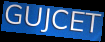
GUJCET